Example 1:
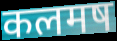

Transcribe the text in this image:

कलमष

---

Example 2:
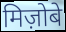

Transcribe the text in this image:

मिज़ोबे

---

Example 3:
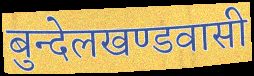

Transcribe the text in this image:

बुन्देलखण्डवासी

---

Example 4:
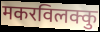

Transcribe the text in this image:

मकरविलक्कु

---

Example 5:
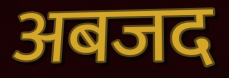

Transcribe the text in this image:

अबजद